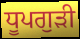
ਧੂਪਗੁੜੀ